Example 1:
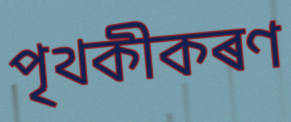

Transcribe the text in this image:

পৃথকীকৰণ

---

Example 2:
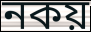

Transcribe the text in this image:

নকয়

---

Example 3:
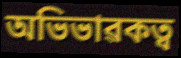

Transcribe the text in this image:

অভিভাৱকত্ব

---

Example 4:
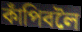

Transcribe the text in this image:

কাঁপিবলৈ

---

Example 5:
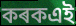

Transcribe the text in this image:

কৰকএই